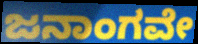
ಜನಾಂಗವೇ